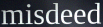
misdeed